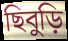
ছিবুড়ি